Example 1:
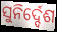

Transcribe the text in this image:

ସୁନିର୍ଦ୍ଦେଶ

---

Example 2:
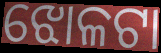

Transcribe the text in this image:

ଝୋଳଟା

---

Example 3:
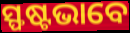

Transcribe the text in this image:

ସ୍ଫଷ୍ଟଭାବେ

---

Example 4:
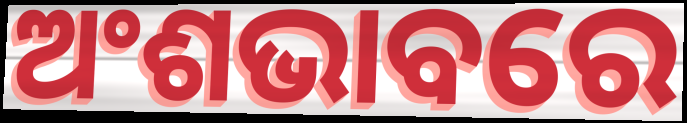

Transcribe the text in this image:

ଅଂଶଭାବରେ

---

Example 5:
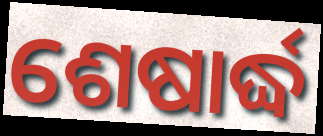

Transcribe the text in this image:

ଶେଷାର୍ଦ୍ଧ